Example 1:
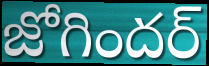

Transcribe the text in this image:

జోగిందర్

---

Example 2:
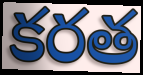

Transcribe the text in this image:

కరత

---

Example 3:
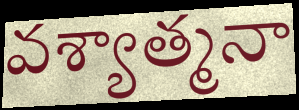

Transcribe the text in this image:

వశ్యాత్మనా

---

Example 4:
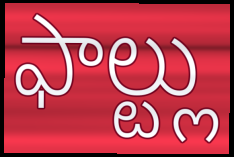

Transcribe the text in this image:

ఫాల్ట్లు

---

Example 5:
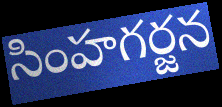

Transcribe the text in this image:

సింహగర్జన